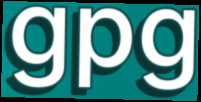
gpg